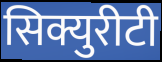
सिक्युरीटी